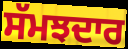
ਸੱਮਝਦਾਰ